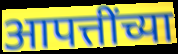
आपत्तींच्या